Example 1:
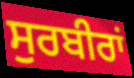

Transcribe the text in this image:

ਸੁਰਬੀਰਾਂ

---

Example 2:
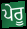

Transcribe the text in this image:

ਪੇਰੂ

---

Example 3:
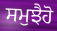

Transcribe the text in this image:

ਸਮੁਝੈਹੋ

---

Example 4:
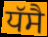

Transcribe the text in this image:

ਧੱਸੈ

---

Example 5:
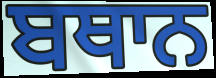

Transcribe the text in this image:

ਬਥਾਨ